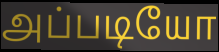
அப்படியோ